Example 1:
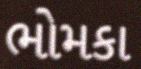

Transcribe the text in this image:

ભોમકા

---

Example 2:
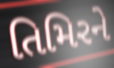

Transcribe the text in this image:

તિમિરને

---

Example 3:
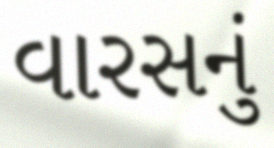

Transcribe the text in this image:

વારસનું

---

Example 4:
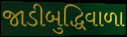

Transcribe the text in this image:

જાડીબુદ્ધિવાળા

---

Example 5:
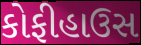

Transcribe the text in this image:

કોફીહાઉસ